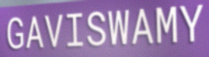
GAVISWAMY